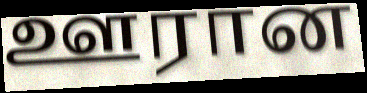
ஊரான